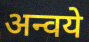
अन्वये